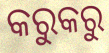
କରୁକରୁ